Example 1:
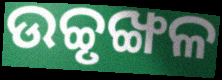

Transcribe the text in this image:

ଉଚ୍ଚୃଙ୍ଖଳ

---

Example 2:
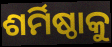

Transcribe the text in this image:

ଶର୍ମିଷ୍ଠାକୁ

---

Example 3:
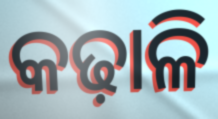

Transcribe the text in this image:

କଢ଼ାଳି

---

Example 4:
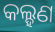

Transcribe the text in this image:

କଲ୍ହଣ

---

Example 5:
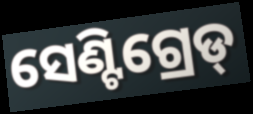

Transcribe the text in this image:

ସେଣ୍ଟିଗ୍ରେଡ୍